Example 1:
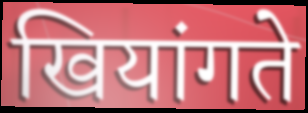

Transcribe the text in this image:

खियांगते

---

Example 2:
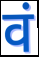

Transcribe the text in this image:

वं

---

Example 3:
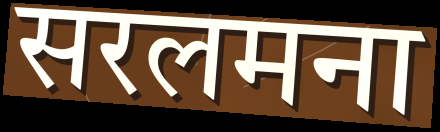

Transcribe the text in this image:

सरलमना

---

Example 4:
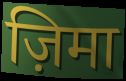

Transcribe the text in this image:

ज़िमा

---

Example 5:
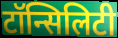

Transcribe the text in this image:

टॉन्सिलिटी